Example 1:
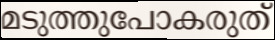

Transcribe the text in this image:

മടുത്തുപോകരുത്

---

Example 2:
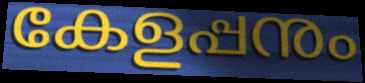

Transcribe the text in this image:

കേളപ്പനും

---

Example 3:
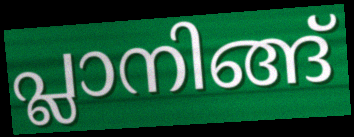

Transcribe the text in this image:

പ്ലാനിങ്ങ്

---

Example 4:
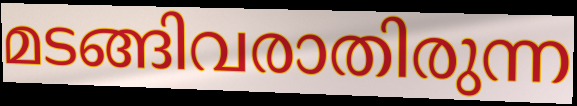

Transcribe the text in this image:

മടങ്ങിവരാതിരുന്ന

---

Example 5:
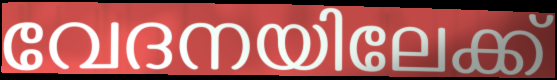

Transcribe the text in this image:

വേദനയിലേക്ക്